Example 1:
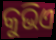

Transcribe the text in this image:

କୁଭିଏ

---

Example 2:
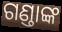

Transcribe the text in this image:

ଗଣ୍ଡାଙ୍କ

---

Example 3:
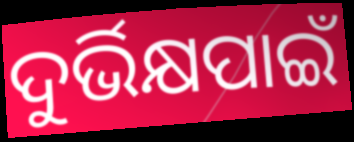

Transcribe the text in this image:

ଦୁର୍ଭିକ୍ଷପାଇଁ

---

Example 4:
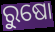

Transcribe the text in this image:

ରୁଷୋ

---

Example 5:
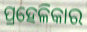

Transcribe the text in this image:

ପ୍ରହେଳିକାର